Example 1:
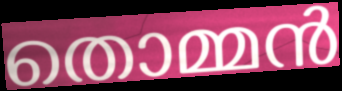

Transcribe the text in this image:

തൊമ്മൻ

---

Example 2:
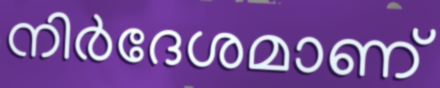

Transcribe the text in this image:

നിർദേശമാണ്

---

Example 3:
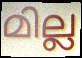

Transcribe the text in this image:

മില്ല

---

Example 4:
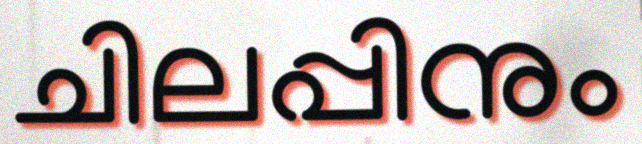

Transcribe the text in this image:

ചിലപ്പിനും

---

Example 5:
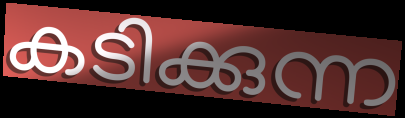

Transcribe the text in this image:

കടിക്കുന്ന